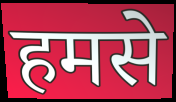
हमसे